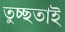
তুচ্ছতাই